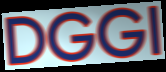
DGGI